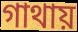
গাথায়